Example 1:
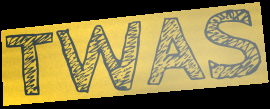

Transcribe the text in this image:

TWAS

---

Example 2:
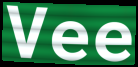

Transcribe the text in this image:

Vee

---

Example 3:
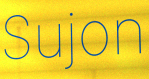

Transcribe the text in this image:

Sujon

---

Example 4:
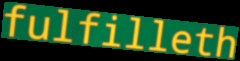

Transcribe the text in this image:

fulfilleth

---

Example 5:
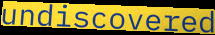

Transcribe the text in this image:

undiscovered